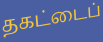
தகட்டைப்